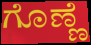
ಗೊಣ್ಣೆ